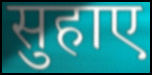
सुहाए